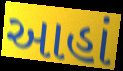
આહાં